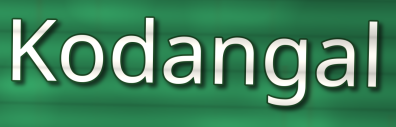
Kodangal